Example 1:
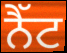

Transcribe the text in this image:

ਨੈੱਟ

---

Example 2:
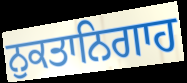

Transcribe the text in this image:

ਨੁਕਤਾਨਿਗਾਹ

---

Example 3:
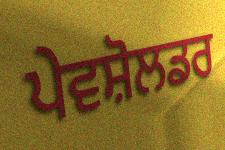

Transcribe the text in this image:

ਪੇਵਸ਼ੋਲਡਰ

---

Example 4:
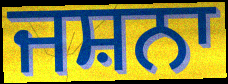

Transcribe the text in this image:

ਜਸ਼ਨਾ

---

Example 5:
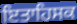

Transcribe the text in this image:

ਇਤਾਹਿਸਕ